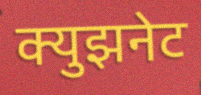
क्युझनेट